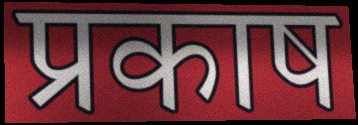
प्रकाष